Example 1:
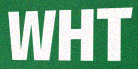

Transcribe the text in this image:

WHT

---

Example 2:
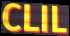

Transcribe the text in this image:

CLIL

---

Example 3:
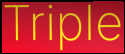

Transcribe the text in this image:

Triple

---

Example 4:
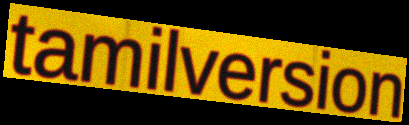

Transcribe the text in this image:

tamilversion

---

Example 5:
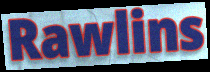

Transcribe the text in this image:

Rawlins